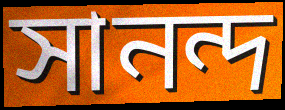
সানন্দ